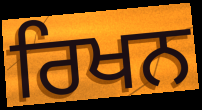
ਰਿਖਨ